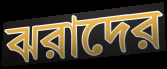
ঝরাদের